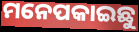
ମନେପକାଇଛୁ